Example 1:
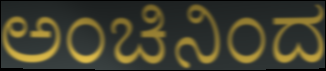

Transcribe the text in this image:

ಅಂಚಿನಿಂದ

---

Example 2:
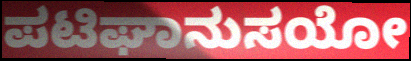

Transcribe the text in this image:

ಪಟಿಘಾನುಸಯೋ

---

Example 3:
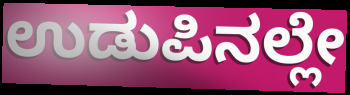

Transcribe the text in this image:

ಉಡುಪಿನಲ್ಲೇ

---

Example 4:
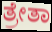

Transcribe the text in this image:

ತ್ರೇತಾ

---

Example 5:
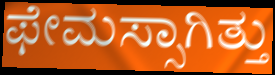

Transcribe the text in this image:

ಫೇಮಸ್ಸಾಗಿತ್ತು